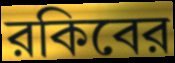
রকিবের